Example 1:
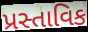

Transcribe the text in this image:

પ્રસ્તાવિક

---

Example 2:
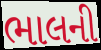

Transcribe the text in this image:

ભાલની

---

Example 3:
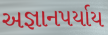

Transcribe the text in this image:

અજ્ઞાનપર્યાય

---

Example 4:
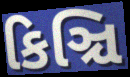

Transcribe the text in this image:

કિઞ્ચિ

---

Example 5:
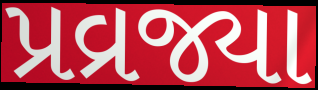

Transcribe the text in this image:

પ્રવ્રજ્યા